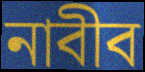
নাবীব